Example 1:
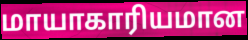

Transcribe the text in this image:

மாயாகாரியமான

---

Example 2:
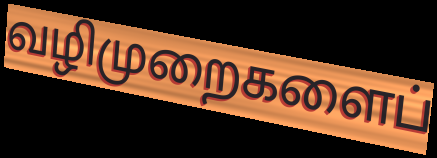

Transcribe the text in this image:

வழிமுறைகளைப்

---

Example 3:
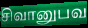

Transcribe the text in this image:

சிவானுபவ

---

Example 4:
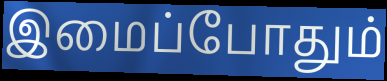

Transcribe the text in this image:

இமைப்போதும்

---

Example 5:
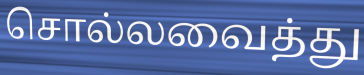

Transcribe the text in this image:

சொல்லவைத்து